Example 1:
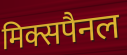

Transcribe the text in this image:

मिक्सपैनल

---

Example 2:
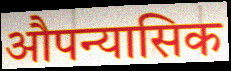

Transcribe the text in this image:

औपन्यासिक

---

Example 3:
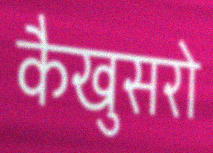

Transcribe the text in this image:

कैखुसरो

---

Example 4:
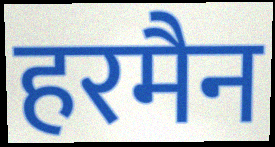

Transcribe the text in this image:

हरमैन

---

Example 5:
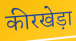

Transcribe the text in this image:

कीरखेड़ा